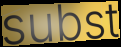
subst